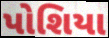
પોશિયા